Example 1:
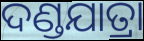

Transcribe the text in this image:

ଦଣ୍ଡଯାତ୍ରା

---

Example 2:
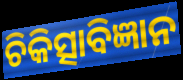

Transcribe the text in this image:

ଚିକିତ୍ସାବିଜ୍ଞାନ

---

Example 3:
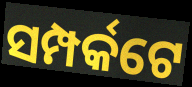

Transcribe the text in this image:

ସମ୍ପର୍କଟେ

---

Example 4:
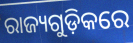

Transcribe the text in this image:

ରାଜ୍ୟଗୁଡ଼ିକରେ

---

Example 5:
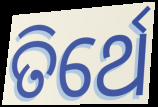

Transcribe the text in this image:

ତିର୍ଥେ